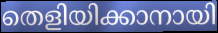
തെളിയിക്കാനായി